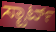
ಸ್ಟಾರ್ಟ್